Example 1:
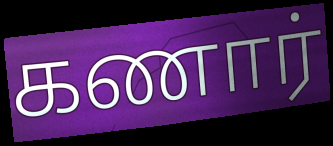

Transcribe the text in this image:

கணார்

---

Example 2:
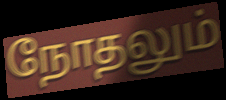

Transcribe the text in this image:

நோதலும்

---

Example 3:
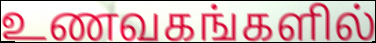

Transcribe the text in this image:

உணவகங்களில்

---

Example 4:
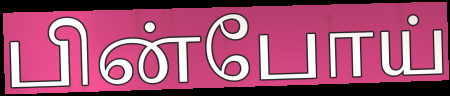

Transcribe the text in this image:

பின்போய்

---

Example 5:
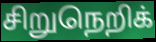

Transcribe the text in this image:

சிறுநெறிக்